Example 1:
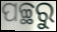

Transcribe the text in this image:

ପଚ୍ଛରୁ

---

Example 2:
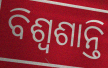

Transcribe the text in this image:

ବିଶ୍ୱଶାନ୍ତି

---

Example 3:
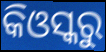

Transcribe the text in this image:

କିଓସ୍କରୁ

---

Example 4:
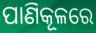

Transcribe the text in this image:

ପାଣିକୂଳରେ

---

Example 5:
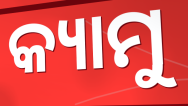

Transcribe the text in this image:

କ୍ୟାମୁ